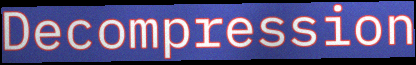
Decompression